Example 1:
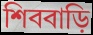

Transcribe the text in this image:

শিববাড়ি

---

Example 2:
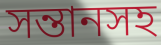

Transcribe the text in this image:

সন্তানসহ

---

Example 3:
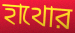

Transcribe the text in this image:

হাথোর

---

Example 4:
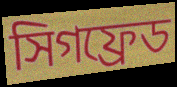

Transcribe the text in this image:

সিগফ্রেড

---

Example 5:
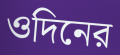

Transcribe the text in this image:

ওদিনের